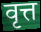
वृत्त